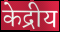
केद्रीय